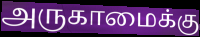
அருகாமைக்கு